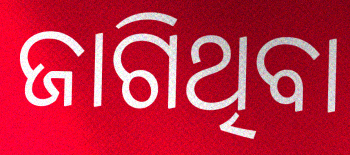
ଜାଗିଥିବା